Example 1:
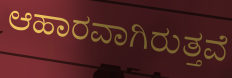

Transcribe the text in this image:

ಆಹಾರವಾಗಿರುತ್ತವೆ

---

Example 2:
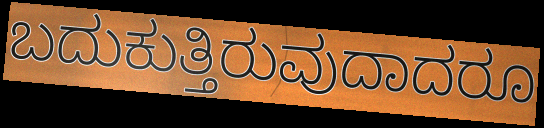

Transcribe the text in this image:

ಬದುಕುತ್ತಿರುವುದಾದರೂ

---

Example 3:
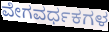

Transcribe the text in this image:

ವೇಗವರ್ಧಕಗಳ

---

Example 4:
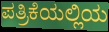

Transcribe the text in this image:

ಪತ್ರಿಕೆಯಲ್ಲಿಯ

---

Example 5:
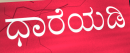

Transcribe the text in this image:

ಧಾರೆಯಡಿ